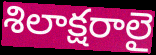
శిలాక్షరాలై